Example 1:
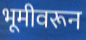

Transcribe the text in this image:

भूमीवरून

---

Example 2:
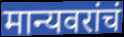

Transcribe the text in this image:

मान्यवरांचं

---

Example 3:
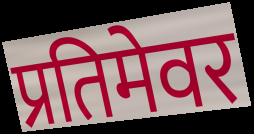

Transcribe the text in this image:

प्रतिमेवर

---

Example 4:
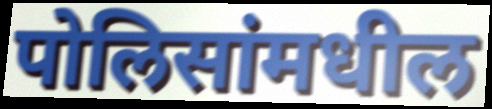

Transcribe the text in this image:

पोलिसांमधील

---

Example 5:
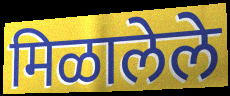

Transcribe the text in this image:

मिळालेले